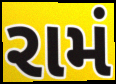
રામં